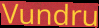
Vundru